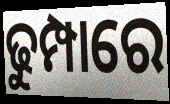
ଢୁମ୍ପାରେ